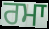
ਰਮਾ